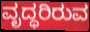
ವೃದ್ಧರಿರುವ